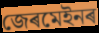
জেৰমেইনৰ